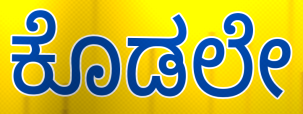
ಕೊಡಲೇ